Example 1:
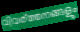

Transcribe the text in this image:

വിവര്ത്തനങ്ങളും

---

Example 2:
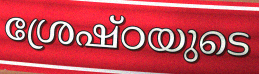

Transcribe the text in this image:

ശ്രേഷ്ഠയുടെ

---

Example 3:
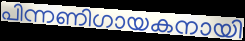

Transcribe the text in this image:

പിന്നണിഗായകനായി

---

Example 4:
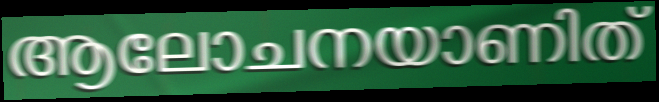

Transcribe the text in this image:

ആലോചനയാണിത്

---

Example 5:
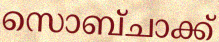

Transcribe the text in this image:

സൊബ്ചാക്ക്